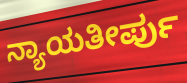
ನ್ಯಾಯತೀರ್ಪು